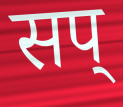
सप्